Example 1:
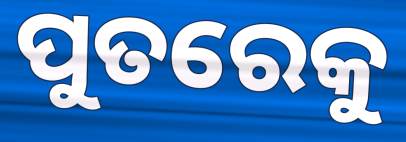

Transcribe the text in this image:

ପୁତରେକୁ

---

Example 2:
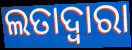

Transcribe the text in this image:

ଲତାଦ୍ୱାରା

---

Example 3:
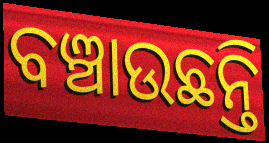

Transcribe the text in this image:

ବଞ୍ଚାଉଛନ୍ତି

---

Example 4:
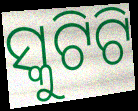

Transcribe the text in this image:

ସ୍କୁଟିଟି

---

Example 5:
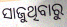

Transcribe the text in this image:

ସାଜୁଥିବାରୁ